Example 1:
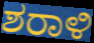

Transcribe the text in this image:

ಶರಾಳಿ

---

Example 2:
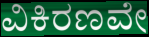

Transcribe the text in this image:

ವಿಕಿರಣವೇ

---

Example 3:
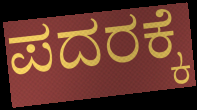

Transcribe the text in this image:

ಪದರಕ್ಕೆ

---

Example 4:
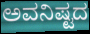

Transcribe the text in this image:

ಅವನಿಷ್ಟದ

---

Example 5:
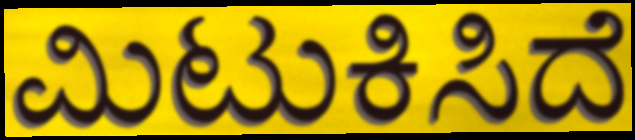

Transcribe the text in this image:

ಮಿಟುಕಿಸಿದೆ